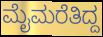
ಮೈಮರೆತಿದ್ದ